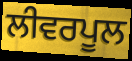
ਲੀਵਰਪੂਲ